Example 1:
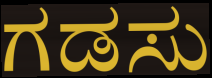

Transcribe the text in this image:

ಗಡಸು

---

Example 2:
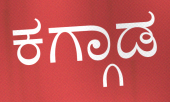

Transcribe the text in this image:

ಕಗ್ಗಾಡ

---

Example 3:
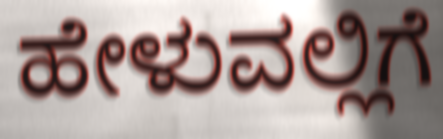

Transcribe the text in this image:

ಹೇಳುವಲ್ಲಿಗೆ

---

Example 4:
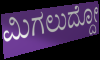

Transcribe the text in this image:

ಮಿಗಲುದ್ದೋ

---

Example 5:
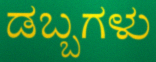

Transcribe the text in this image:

ಡಬ್ಬಗಳು